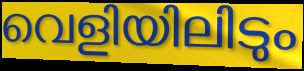
വെളിയിലിടും